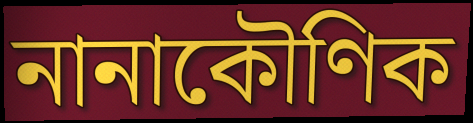
নানাকৌণিক